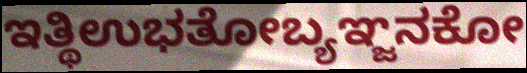
ಇತ್ಥಿಉಭತೋಬ್ಯಞ್ಜನಕೋ